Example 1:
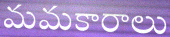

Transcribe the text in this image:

మమకారాలు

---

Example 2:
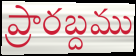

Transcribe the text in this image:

ప్రారబ్దము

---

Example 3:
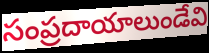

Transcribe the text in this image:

సంప్రదాయాలుండేవి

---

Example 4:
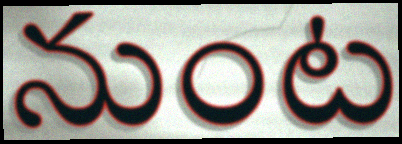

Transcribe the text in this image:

నుంట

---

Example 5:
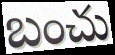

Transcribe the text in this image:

బంచు